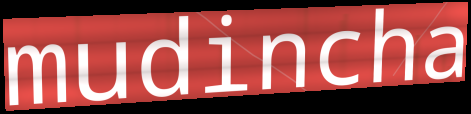
mudincha